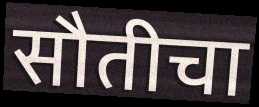
सौतीचा